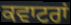
ਕਵਾਟਰਾਂ